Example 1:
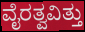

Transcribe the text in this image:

ವೈರತ್ವವಿತ್ತು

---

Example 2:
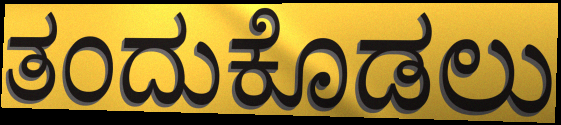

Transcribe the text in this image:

ತಂದುಕೊಡಲು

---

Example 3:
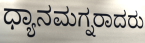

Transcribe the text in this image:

ಧ್ಯಾನಮಗ್ನರಾದರು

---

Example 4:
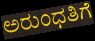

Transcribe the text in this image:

ಅರುಂಧತಿಗೆ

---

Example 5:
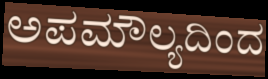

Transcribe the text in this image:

ಅಪಮೌಲ್ಯದಿಂದ